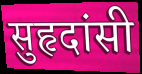
सुहृदांसी